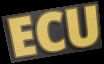
ECU